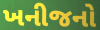
ખનીજનો